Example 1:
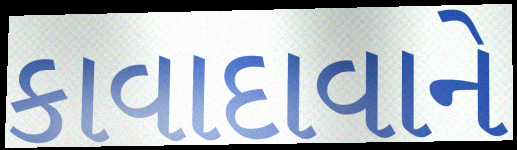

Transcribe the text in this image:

કાવાદાવાને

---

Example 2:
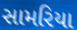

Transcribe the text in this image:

સામરિયા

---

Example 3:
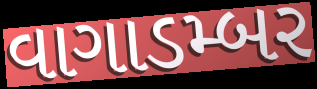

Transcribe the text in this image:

વાગાડમ્બર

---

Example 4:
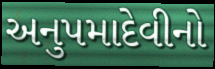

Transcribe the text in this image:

અનુપમાદેવીનો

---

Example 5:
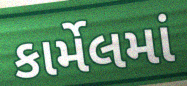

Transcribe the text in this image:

કાર્મેલમાં